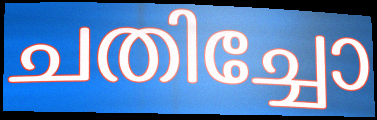
ചതിച്ചോ